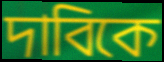
দাবিকে